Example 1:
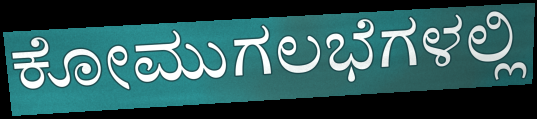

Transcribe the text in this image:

ಕೋಮುಗಲಭೆಗಳಲ್ಲಿ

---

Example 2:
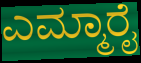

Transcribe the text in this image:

ಎಮ್ಮಾರೈ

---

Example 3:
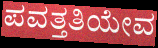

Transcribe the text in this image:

ಪವತ್ತತಿಯೇವ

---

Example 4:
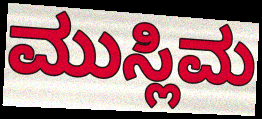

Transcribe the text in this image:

ಮುಸ್ಲಿಮ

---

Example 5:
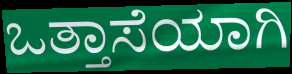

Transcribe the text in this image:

ಒತ್ತಾಸೆಯಾಗಿ